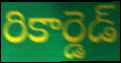
రికార్డెడ్